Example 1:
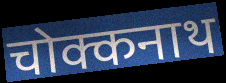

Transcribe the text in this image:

चोक्कनाथ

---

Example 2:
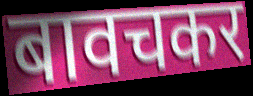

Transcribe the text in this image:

बावचकर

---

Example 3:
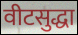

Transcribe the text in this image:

वीटसुद्धा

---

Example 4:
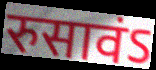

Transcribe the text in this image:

रुसावंऽ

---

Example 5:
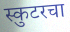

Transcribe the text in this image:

स्कुटरचा